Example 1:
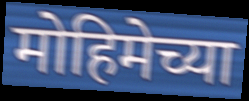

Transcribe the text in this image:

मोहिमेच्या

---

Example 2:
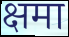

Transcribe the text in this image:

क्षमा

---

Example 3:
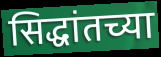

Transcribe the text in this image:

सिद्धांतच्या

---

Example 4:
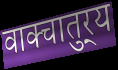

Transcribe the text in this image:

वाक्चातुर्य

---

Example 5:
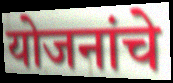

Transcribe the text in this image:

योजनांचे